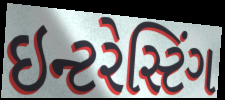
ઇન્ટરેસ્ટિંગ